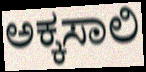
ಅಕ್ಕಸಾಲಿ